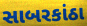
સાબરકાંઠા